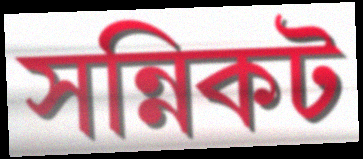
সন্নিকট